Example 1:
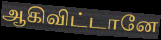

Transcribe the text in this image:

ஆகிவிட்டானே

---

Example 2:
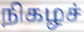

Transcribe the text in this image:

நிகழச்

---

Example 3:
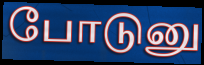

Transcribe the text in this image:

போடுனு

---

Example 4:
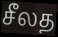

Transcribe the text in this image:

சீலத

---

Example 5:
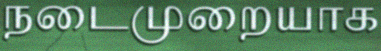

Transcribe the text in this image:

நடைமுறையாக